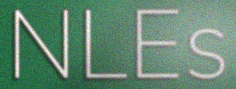
NLEs